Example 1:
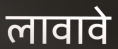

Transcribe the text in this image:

लावावे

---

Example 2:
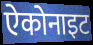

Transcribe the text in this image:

ऐकोनाइट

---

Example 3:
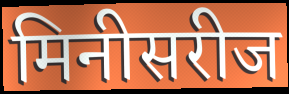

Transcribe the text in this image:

मिनीसरीज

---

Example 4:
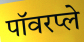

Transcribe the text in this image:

पॉवरप्ले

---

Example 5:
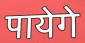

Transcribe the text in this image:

पायेगे